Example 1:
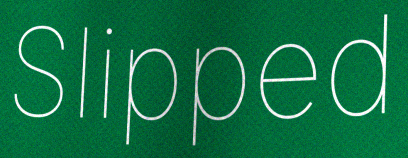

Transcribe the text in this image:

Slipped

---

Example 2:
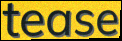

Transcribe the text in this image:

tease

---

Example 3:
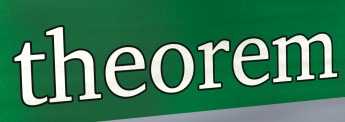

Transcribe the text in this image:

theorem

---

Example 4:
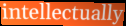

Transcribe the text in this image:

intellectually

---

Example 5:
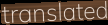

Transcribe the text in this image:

translated